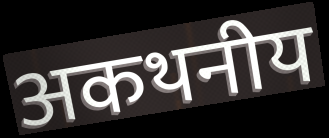
अकथनीय